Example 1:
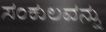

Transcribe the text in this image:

ಸಂಕುಲವನ್ನು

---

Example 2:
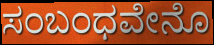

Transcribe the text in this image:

ಸಂಬಂಧವೇನೊ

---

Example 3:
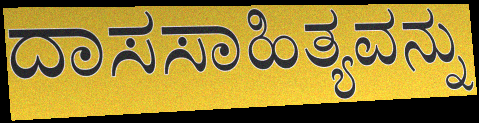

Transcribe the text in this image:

ದಾಸಸಾಹಿತ್ಯವನ್ನು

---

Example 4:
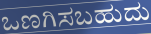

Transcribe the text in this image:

ಒಣಗಿಸಬಹುದು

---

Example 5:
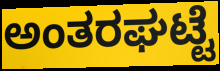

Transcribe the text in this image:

ಅಂತರಘಟ್ಟೆ